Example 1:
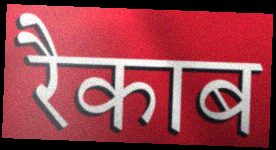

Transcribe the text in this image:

रैकाब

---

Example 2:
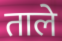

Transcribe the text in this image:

ताले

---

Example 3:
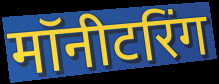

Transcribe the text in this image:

मॉनीटरिंग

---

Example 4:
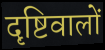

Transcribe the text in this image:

दृष्टिवालों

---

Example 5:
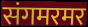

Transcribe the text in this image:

संगमरमर